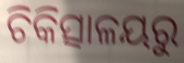
ଚିକିତ୍ସାଳୟରୁ